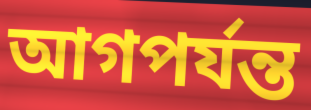
আগপর্যন্ত